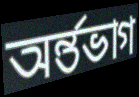
অৰ্ন্তভাগ